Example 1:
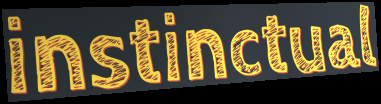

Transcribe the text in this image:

instinctual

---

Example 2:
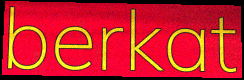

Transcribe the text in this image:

berkat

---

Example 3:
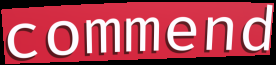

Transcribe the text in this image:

commend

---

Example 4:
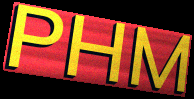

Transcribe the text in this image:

PHM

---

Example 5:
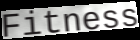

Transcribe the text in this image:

Fitness